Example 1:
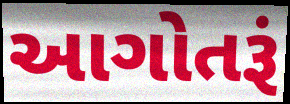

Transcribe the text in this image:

આગોતરૂં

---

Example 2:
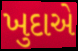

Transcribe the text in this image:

ખુદાએ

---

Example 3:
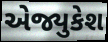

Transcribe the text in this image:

એજ્યુકેશ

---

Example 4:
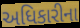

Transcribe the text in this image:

અધિકારીના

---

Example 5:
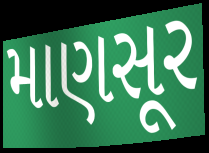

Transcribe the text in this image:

માણસૂર